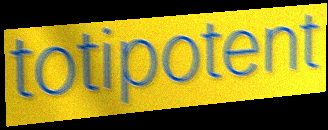
totipotent